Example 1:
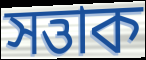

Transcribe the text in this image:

সত্তাক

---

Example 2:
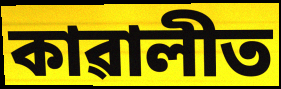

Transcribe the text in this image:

কাৱালীত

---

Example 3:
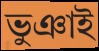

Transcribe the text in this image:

ভুঞাই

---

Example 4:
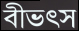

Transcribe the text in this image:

বীভৎস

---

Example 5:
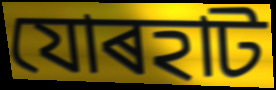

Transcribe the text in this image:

যোৰহাট